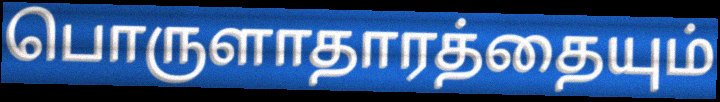
பொருளாதாரத்தையும்